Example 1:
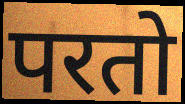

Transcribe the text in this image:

परतो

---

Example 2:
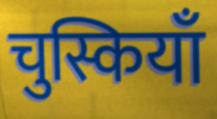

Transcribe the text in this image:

चुस्कियाँ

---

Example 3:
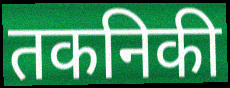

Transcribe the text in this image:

तकनिकी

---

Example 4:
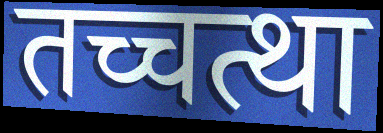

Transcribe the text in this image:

तच्चत्था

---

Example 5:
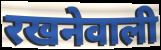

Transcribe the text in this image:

रखनेवाली